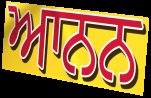
ਆਨਨ